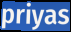
priyas